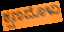
ಕ್ಷಣದೊಳು